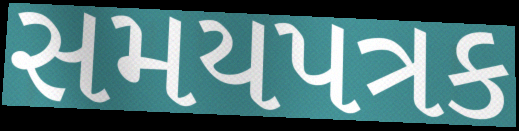
સમયપત્રક